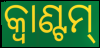
କ୍ଵାଣ୍ଟମ୍